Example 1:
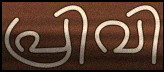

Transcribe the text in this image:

പ്രിവി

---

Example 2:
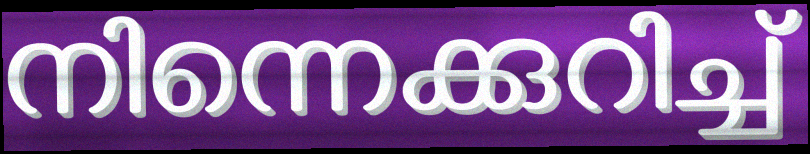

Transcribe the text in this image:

നിന്നെക്കുറിച്ച്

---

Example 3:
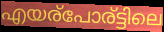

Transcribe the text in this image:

എയര്പോര്ട്ടിലെ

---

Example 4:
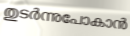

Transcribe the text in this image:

തുടർന്നുപോകാൻ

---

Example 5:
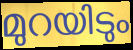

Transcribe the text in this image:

മുറയിടും